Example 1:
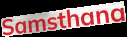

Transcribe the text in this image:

Samsthana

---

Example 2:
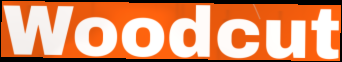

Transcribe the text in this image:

Woodcut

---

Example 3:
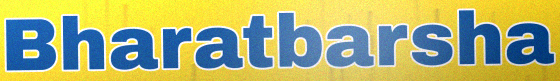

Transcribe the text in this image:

Bharatbarsha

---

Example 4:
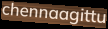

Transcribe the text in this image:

chennaagittu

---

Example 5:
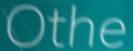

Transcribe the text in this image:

Othe